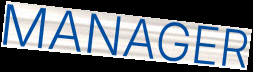
MANAGER